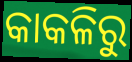
କାକଳିରୁ